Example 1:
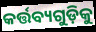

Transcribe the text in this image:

କର୍ତ୍ତବ୍ୟଗୁଡ଼ିକୁ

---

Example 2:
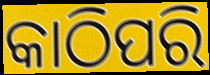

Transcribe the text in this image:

କାଠିପରି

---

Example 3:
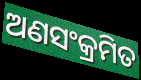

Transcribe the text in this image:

ଅଣସଂକ୍ରମିତ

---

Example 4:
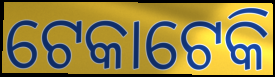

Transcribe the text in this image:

ଟେକାଟେକି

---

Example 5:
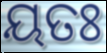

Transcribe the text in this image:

ୟତଃ